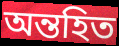
অন্তহিত